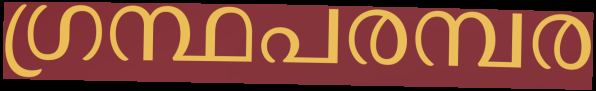
ഗ്രന്ഥപരമ്പര